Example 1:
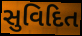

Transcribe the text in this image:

સુવિદિત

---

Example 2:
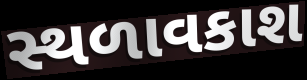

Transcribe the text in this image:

સ્થળાવકાશ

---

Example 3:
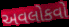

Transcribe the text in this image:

અવલોકવો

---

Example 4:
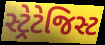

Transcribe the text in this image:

સ્ટ્રેટેજિસ્ટ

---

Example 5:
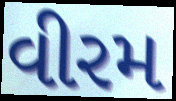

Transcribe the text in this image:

વીરમ